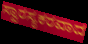
ಸ್ವಾರಸ್ಯಕರವಾದ